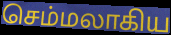
செம்மலாகிய